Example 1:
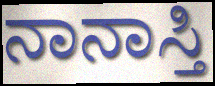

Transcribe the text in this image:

ನಾನಾಸ್ತಿ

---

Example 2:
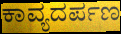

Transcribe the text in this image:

ಕಾವ್ಯದರ್ಪಣ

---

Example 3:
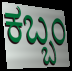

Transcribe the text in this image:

ಕಬ್ಬಂ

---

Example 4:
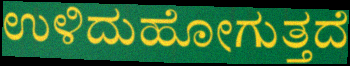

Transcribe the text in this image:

ಉಳಿದುಹೋಗುತ್ತದೆ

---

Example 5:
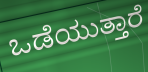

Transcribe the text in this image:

ಒಡೆಯುತ್ತಾರೆ